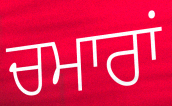
ਚਮਾਰਾਂ